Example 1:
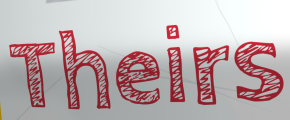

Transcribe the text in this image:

Theirs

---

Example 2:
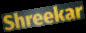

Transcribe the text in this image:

Shreekar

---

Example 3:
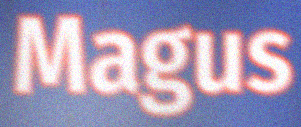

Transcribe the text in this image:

Magus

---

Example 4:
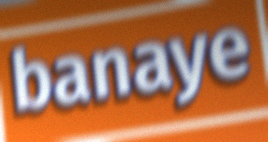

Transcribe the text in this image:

banaye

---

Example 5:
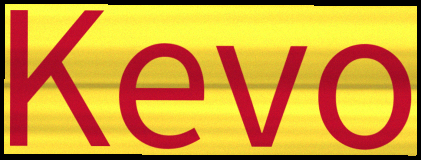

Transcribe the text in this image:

Kevo